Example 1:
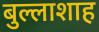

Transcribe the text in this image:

बुल्लाशाह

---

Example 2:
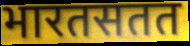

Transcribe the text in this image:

भारतसतत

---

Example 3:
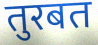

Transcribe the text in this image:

तुरबत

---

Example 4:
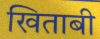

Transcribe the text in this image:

खिताबी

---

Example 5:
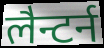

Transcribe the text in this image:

लैन्टर्न